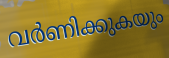
വർണിക്കുകയും